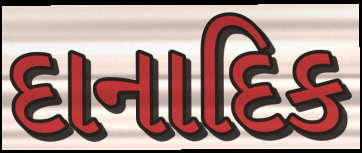
દાનાદિક